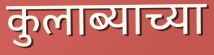
कुलाब्याच्या